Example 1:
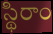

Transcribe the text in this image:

స్థిరాం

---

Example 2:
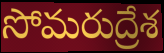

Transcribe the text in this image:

సోమరుద్రేశ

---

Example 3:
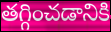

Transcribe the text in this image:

తగ్గించడానికి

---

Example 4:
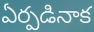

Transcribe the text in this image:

ఏర్పడినాక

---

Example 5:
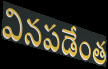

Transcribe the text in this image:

వినపడేంత